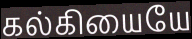
கல்கியையே